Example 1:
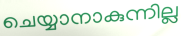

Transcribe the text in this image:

ചെയ്യാനാകുന്നില്ല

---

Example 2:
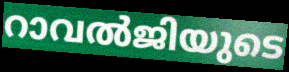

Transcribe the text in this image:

റാവൽജിയുടെ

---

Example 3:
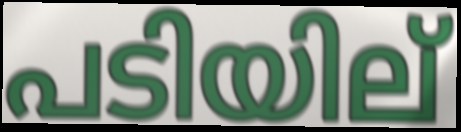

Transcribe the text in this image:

പടിയില്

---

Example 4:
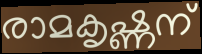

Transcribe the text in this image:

രാമകൃഷ്ണന്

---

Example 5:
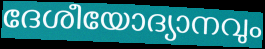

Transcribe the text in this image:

ദേശീയോദ്യാനവും